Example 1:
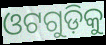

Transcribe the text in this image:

ଓଟଗୁଡ଼ିକୁ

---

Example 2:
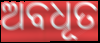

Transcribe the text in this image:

ଅବଧୂତ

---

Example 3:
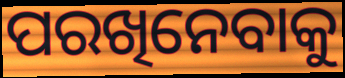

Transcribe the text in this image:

ପରଖିନେବାକୁ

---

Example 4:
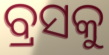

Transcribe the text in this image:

ବ୍ରସକୁ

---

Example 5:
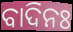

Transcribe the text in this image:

ବାଦିନଃ